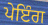
ਪੇਇੰਗ